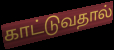
காட்டுவதால்